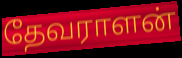
தேவராளன்